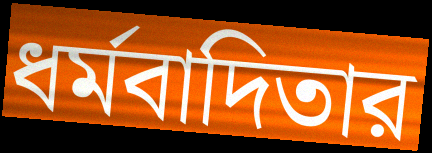
ধর্মবাদিতার